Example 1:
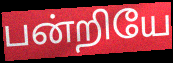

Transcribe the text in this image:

பன்றியே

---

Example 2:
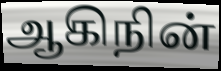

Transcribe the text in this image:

ஆகிநின்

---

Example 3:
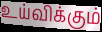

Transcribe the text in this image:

உய்விக்கும்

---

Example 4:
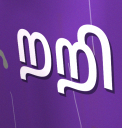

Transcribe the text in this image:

றறி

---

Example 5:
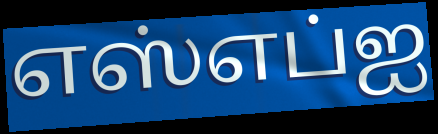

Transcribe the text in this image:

எஸ்எப்ஐ